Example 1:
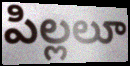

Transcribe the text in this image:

పిల్లలూ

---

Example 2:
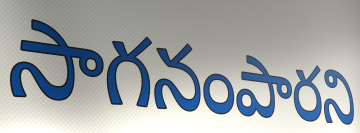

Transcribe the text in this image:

సాగనంపారని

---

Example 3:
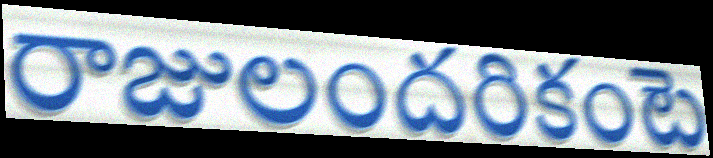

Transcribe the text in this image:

రాజులందరికంటె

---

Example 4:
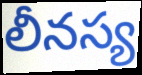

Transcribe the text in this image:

లీనస్య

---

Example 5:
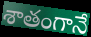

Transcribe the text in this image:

శాతంగానే